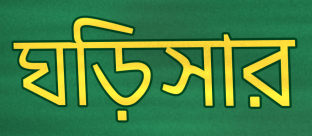
ঘড়িসার